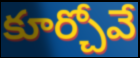
కూర్చోవే